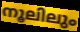
നൂലിലും